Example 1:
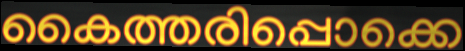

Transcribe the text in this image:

കൈത്തരിപ്പൊക്കെ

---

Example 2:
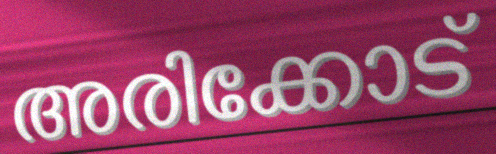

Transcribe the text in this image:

അരിക്കോട്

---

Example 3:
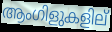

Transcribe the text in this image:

ആംഗിളുകളില്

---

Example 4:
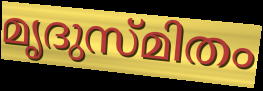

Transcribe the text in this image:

മൃദുസ്മിതം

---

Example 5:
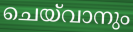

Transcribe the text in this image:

ചെയ്‌വാനും